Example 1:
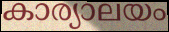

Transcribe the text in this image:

കാര്യാലയം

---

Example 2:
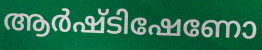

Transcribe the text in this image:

ആർഷ്ടിഷേണോ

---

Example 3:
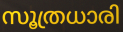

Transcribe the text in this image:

സൂത്രധാരി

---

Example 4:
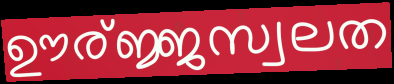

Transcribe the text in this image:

ഊര്ജ്ജസ്വലത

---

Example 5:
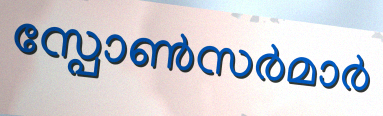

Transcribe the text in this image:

സ്പോൺസർമാർ